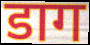
डाग